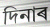
দিনাৰ